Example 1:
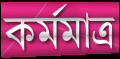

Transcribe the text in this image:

কর্মমাত্র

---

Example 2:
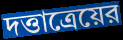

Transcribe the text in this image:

দত্তাত্রেয়ের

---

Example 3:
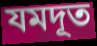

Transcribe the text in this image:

যমদূত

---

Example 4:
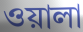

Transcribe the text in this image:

ওয়ালা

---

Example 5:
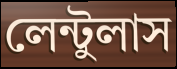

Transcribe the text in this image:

লেন্টুলাস